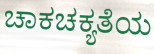
ಚಾಕಚಕ್ಯತೆಯ